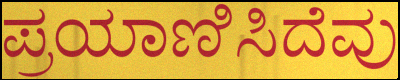
ಪ್ರಯಾಣಿಸಿದೆವು